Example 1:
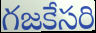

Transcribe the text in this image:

గజకేసరి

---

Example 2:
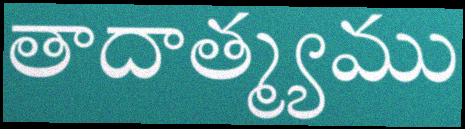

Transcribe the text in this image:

తాదాత్మ్యము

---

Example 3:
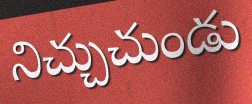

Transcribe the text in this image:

నిచ్చుచుండు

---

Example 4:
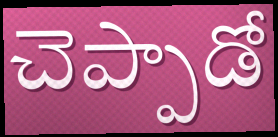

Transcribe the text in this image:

చెప్పాడో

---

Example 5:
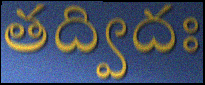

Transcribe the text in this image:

తద్విదః